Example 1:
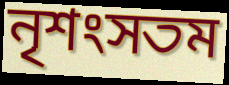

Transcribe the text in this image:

নৃশংসতম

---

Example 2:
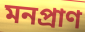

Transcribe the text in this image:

মনপ্রাণ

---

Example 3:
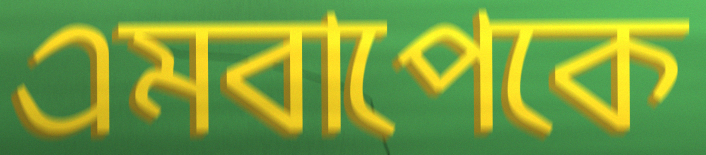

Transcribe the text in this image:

এমবাপেকে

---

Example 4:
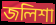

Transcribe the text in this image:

জলিশা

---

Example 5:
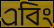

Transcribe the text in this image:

এবিং